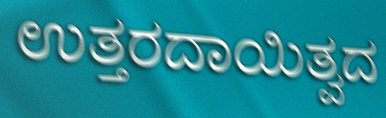
ಉತ್ತರದಾಯಿತ್ವದ